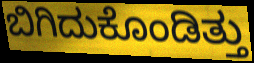
ಬಿಗಿದುಕೊಂಡಿತ್ತು